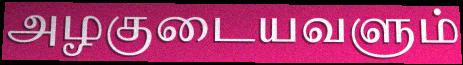
அழகுடையவளும்